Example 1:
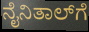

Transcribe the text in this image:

ನೈನಿತಾಲ್‌ಗೆ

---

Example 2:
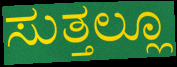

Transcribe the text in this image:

ಸುತ್ತಲ್ಲೂ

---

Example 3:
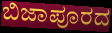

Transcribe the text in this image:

ಬಿಜಾಪೂರದ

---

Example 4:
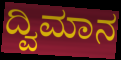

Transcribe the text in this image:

ದ್ವಿಮಾನ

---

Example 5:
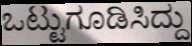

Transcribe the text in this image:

ಒಟ್ಟುಗೂಡಿಸಿದ್ದು